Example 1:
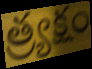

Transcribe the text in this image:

త్ర్యక్షం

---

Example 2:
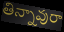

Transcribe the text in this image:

తిన్నావురా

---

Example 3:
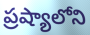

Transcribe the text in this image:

ప్రష్యాలోని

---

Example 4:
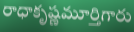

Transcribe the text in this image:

రాధాకృష్ణమూర్తిగారు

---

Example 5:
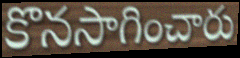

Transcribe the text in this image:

కొనసాగించారు